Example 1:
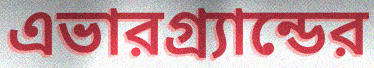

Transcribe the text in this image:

এভারগ্র্যান্ডের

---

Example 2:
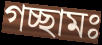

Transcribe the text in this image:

গচ্ছামঃ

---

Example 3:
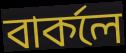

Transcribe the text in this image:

বার্কলে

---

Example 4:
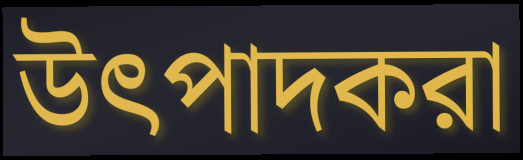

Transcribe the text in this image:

উৎপাদকরা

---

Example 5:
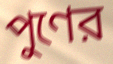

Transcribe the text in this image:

পুণের